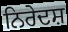
ਨਿਰੇਦਸ਼